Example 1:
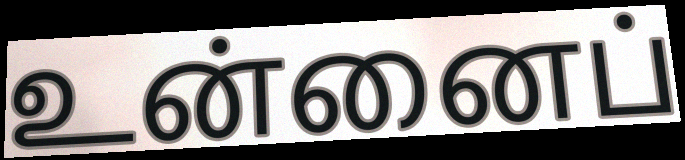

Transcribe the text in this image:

உன்னைப்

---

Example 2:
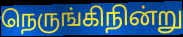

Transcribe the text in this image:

நெருங்கிநின்று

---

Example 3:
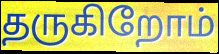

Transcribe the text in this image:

தருகிறோம்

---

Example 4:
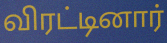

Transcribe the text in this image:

விரட்டினார்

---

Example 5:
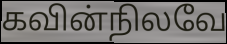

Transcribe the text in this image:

கவின்நிலவே